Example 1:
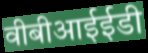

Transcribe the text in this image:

वीबीआईईडी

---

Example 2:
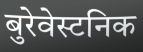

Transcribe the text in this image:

बुरेवेस्टनिक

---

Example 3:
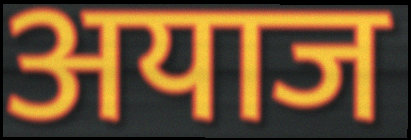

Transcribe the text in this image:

अयाज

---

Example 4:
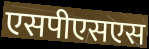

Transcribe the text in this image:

एसपीएसएस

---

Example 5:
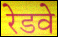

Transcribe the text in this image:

रेडवे